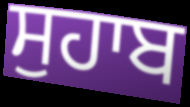
ਸੁਹਾਬ